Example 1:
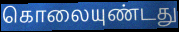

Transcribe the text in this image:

கொலையுண்டது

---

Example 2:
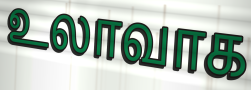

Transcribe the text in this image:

உலாவாக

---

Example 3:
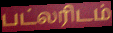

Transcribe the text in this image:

பட்லரிடம்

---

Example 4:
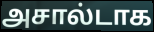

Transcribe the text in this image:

அசால்டாக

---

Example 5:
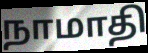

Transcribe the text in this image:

நாமாதி